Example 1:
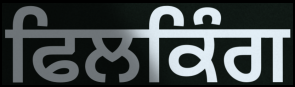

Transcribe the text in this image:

ਫਿਲਕਿੰਗ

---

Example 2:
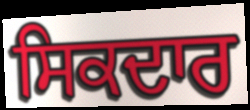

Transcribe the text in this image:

ਸਿਕਦਾਰ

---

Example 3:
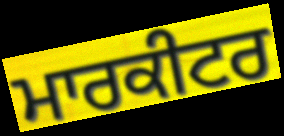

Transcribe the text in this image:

ਮਾਰਕੀਟਰ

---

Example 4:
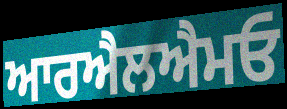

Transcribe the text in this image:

ਆਰਐਲਐਮਓ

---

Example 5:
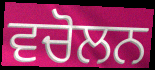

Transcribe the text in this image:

ਵਚੋਲਨ